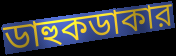
ডাহুকডাকার